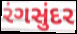
રંગસુંદર